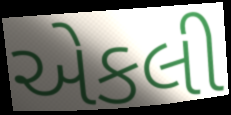
એકલી